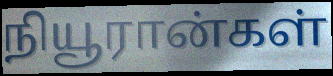
நியூரான்கள்